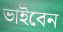
ভাইবেন